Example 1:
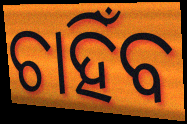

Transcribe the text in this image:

ଚାହିଁବ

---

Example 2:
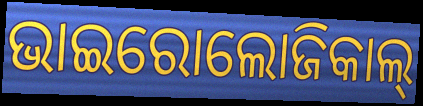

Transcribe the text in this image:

ଭାଇରୋଲୋଜିକାଲ୍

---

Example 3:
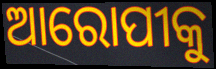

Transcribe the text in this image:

ଆରୋପୀକୁ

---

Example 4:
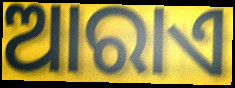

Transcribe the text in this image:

ଆରାଏ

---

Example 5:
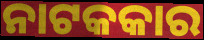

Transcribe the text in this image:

ନାଟକକାର